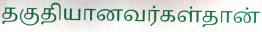
தகுதியானவர்கள்தான்